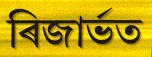
ৰিজাৰ্ভত